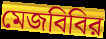
মেজবিবির